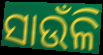
ସାଉଁଳି